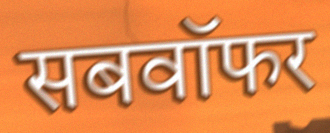
सबवॉफर